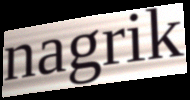
nagrik